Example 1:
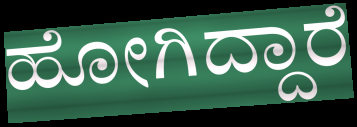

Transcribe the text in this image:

ಹೋಗಿದ್ದಾರೆ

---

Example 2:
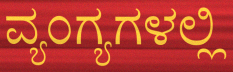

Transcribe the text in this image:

ವ್ಯಂಗ್ಯಗಳಲ್ಲಿ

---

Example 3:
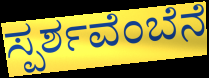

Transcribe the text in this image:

ಸ್ಪರ್ಶವೆಂಬೆನೆ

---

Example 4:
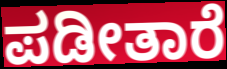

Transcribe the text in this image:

ಪಡೀತಾರೆ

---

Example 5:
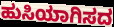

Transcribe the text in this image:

ಹುಸಿಯಾಗಿಸದ